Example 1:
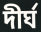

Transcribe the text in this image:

দীর্ঘ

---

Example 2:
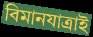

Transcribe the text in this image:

বিমানযাত্রাই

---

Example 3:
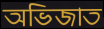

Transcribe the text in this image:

অভিজাত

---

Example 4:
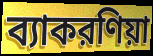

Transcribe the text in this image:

ব্যাকরণিয়া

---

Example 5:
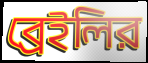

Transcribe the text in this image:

ব্রেইলির